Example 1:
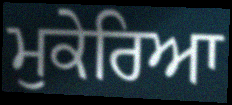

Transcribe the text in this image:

ਮੁਕੇਰਿਆ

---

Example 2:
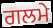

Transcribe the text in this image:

ਗਲਮੇ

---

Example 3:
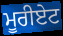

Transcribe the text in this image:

ਮੂਰੀਏਟ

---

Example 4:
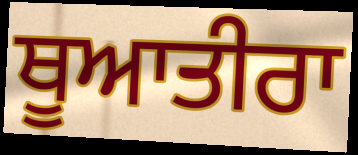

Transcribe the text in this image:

ਥੂਆਤੀਰਾ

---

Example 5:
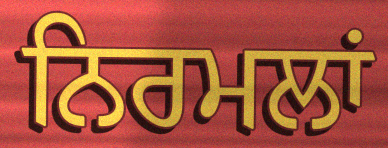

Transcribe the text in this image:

ਨਿਰਮਲਾਂ